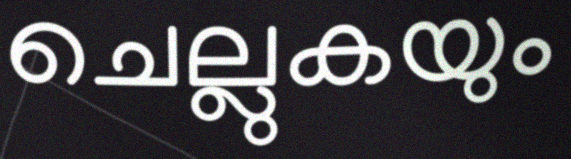
ചെല്ലുകയും